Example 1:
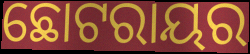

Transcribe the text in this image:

ଛୋଟରାୟର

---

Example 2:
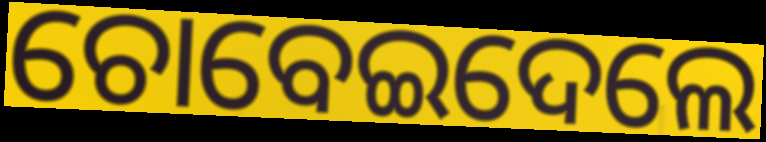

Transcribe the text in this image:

ଚୋବେଇଦେଲେ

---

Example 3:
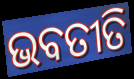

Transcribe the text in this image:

ଭବତୀତି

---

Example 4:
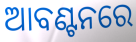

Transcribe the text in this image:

ଆବଣ୍ଟନରେ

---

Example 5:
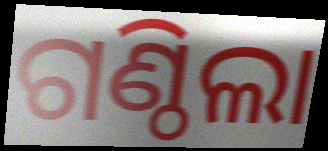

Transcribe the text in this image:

ଗଣ୍ଠିଲା